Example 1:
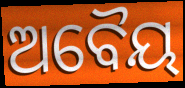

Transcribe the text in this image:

ଅବୈୟ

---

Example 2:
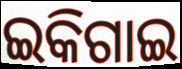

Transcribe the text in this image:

ଇକିଗାଇ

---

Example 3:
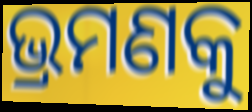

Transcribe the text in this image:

ଭ୍ରମଣକୁ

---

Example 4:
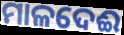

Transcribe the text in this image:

ମାଳଦେଈ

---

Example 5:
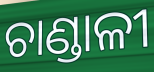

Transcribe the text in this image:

ଚାଣ୍ଡାଳୀ